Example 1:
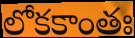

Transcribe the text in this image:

లోకకాంతః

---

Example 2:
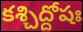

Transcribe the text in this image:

కశ్చిద్దోషః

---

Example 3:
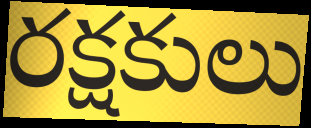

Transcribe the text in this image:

రక్షకులు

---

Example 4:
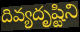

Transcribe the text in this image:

దివ్యదృష్టిని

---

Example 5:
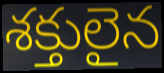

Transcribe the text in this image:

శక్తులైన